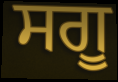
ਸਗੂ